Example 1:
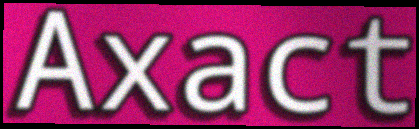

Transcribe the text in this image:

Axact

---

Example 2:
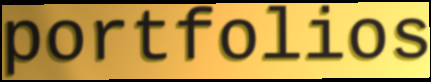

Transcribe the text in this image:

portfolios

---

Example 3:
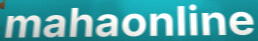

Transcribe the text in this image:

mahaonline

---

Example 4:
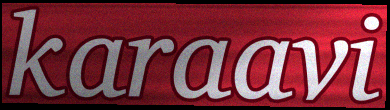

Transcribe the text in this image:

karaavi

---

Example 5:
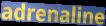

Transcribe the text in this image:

adrenaline